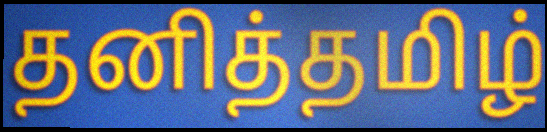
தனித்தமிழ்